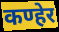
कण्हेर